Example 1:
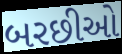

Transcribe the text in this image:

બરછીઓ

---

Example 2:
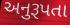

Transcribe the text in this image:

અનુરૂપતા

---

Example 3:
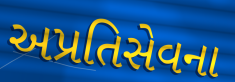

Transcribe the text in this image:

અપ્રતિસેવના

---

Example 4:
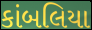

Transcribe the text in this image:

કાંબલિયા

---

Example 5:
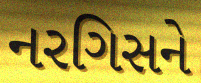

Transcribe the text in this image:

નરગિસને